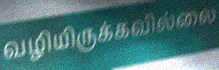
வழியிருக்கவில்லை